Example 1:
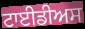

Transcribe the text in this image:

ਟਾਈਡੀਅਸ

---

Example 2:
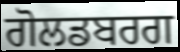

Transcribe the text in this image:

ਗੋਲਡਬਰਗ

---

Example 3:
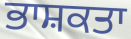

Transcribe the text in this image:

ਭਾਸ਼ਕਤਾ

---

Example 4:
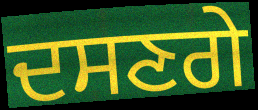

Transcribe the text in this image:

ਦਸਣਗੇ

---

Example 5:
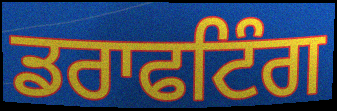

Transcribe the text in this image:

ਡਰਾਫਟਿੰਗ